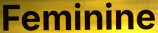
Feminine